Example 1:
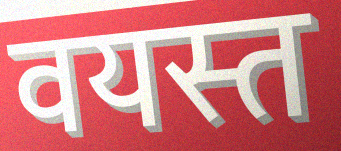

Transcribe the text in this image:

वयस्त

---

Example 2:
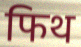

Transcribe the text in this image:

फिथ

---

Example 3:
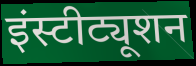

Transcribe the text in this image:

इंस्‍टीट्यूशन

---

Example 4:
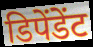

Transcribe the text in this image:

डिपेंडेंट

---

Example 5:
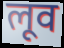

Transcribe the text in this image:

लूव